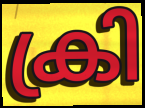
ക്രി